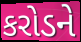
કરોડને